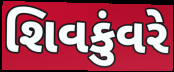
શિવકુંવરે